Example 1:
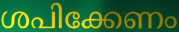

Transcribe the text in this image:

ശപിക്കേണം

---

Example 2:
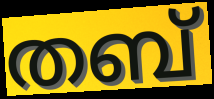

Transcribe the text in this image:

തബ്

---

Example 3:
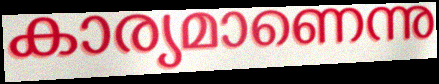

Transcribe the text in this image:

കാര്യമാണെന്നു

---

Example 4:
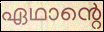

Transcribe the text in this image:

ഏഥാന്റെ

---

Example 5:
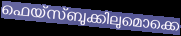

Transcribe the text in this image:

ഫെയ്സ്ബുക്കിലുമൊക്കെ